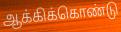
ஆக்கிக்கொண்டு